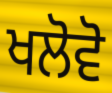
ਖਲੋਵੋ